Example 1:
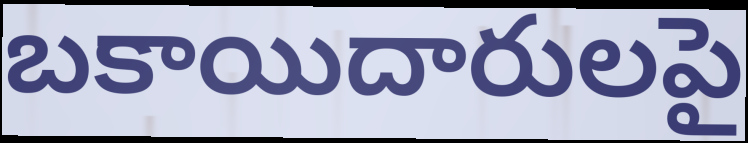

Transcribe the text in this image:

బకాయిదారులపై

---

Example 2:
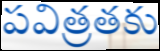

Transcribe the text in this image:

పవిత్రతకు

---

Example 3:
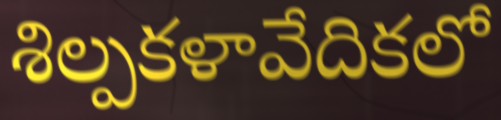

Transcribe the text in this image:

శిల్పకళావేదికలో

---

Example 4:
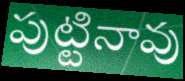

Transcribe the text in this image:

పుట్టినావు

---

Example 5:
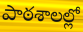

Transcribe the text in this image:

పాఠశాలల్లో